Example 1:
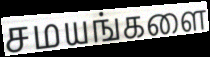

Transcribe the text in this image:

சமயங்களை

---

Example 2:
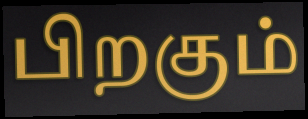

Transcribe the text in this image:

பிறகும்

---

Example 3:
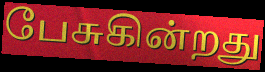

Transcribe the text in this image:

பேசுகின்றது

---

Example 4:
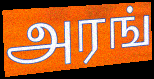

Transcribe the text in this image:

அரங்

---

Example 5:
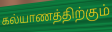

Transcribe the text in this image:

கல்யாணத்திற்கும்